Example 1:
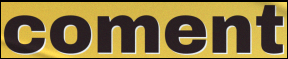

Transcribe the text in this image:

coment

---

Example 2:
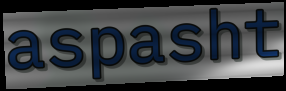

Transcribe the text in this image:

aspasht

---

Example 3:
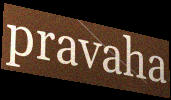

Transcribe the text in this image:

pravaha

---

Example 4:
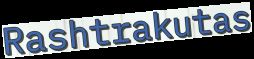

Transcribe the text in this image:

Rashtrakutas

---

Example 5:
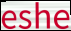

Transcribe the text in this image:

eshe